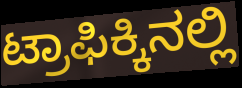
ಟ್ರಾಫಿಕ್ಕಿನಲ್ಲಿ